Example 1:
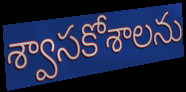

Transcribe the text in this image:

శ్వాసకోశాలను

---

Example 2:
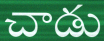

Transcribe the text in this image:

చాడు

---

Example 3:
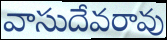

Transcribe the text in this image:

వాసుదేవరావు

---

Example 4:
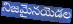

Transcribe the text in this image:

నిజమైనయెడల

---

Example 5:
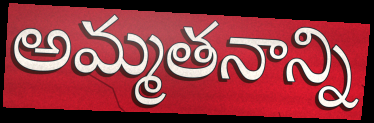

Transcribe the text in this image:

అమ్మతనాన్ని